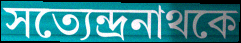
সত্যেন্দ্রনাথকে